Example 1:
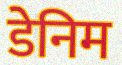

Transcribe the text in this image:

डेनिम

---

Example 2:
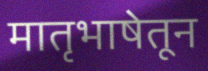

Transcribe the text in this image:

मातृभाषेतून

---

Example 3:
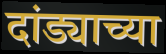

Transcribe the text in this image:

दांड्याच्या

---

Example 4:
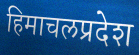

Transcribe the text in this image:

हिमाचलप्रदेश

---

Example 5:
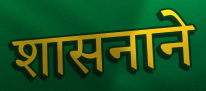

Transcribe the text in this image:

शासनाने